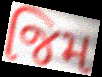
જિમ